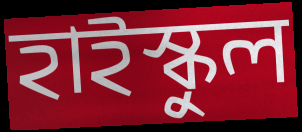
হাইস্কুল